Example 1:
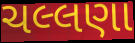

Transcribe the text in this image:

ચલ્લણા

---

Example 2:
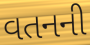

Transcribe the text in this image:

વતનની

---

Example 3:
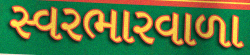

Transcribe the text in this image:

સ્વરભારવાળા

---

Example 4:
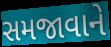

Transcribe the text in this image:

સમજાવાને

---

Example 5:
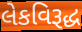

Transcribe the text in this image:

લેકવિરૂદ્ધ